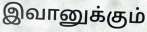
இவானுக்கும்